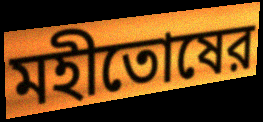
মহীতোষের